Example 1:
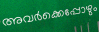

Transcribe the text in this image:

അവർക്കെപ്പോഴും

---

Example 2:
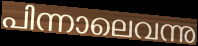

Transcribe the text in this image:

പിന്നാലെവന്നു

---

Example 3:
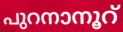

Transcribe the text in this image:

പുറനാനൂറ്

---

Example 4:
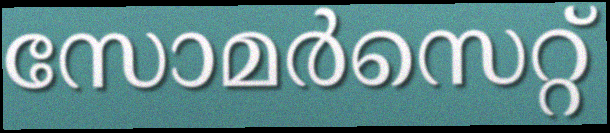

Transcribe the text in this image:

സോമർസെറ്റ്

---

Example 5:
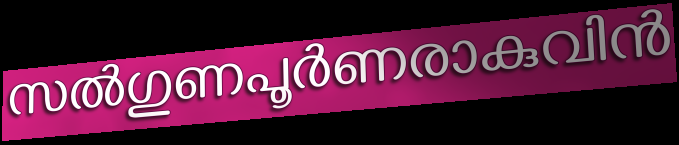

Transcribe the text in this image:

സൽഗുണപൂർണരാകുവിൻ